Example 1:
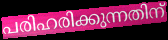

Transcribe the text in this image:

പരിഹരിക്കുന്നതിന്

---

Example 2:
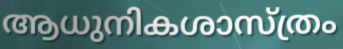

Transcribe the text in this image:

ആധുനികശാസ്ത്രം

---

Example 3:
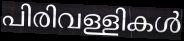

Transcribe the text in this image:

പിരിവള്ളികൾ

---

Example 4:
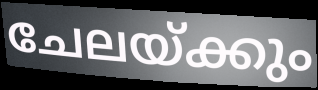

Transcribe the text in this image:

ചേലയ്ക്കും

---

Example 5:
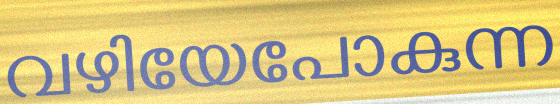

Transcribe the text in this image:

വഴിയേപോകുന്ന